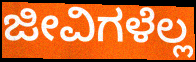
ಜೀವಿಗಳೆಲ್ಲ